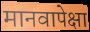
मानवापेक्षा